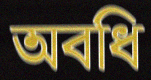
অবধি